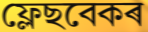
ফ্লেছবেকৰ